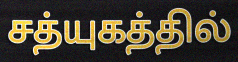
சத்யுகத்தில்